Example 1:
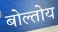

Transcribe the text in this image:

बोल्तोय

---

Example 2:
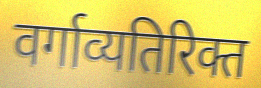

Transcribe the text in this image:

वर्गाव्यतिरिक्त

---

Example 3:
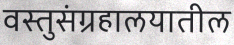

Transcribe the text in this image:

वस्तुसंग्रहालयातील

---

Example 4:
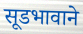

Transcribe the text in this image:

सूडभावाने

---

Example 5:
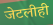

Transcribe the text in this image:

जेटलीही